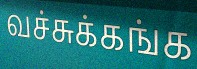
வச்சுக்கங்க